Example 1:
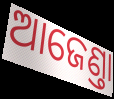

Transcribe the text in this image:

ଆଜେଣ୍ତା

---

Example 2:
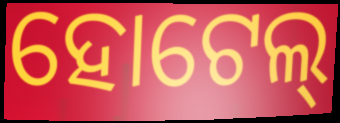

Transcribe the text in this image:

ହୋଟେଲ୍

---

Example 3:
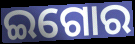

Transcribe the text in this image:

ଇଗୋର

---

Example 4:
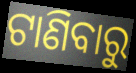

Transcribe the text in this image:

ଟାଣିବାରୁ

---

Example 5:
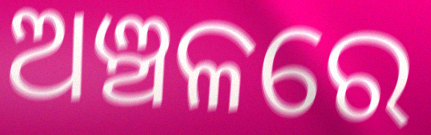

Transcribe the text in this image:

ଅଞ୍ଚଳରେ